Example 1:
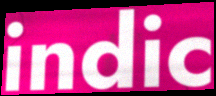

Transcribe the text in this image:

indic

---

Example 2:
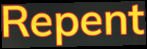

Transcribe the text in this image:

Repent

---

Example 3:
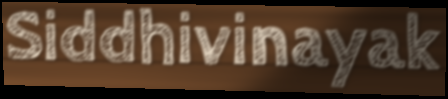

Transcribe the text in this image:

Siddhivinayak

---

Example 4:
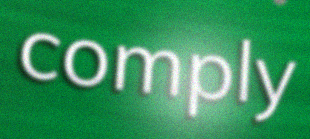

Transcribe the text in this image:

comply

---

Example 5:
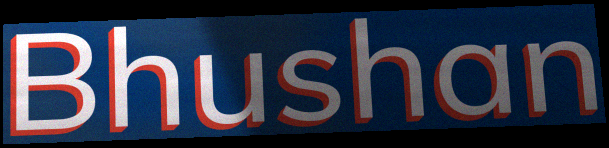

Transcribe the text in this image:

Bhushan